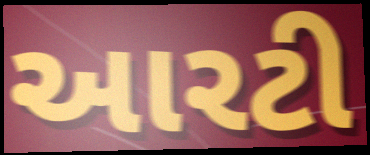
આરટી